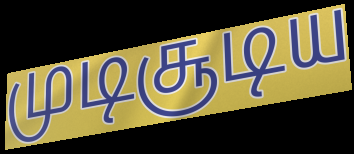
முடிசூடிய